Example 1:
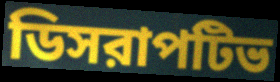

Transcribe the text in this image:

ডিসরাপটিভ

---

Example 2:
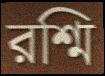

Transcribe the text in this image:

রশ্মি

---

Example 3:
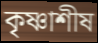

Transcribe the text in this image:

কৃষ্ণাশীষ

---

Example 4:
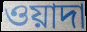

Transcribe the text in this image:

ওয়াদা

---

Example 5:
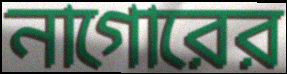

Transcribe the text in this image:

নাগোরের